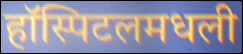
हॉस्पिटलमधली